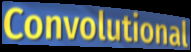
Convolutional